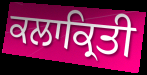
ਕਲਾਕ੍ਰਿਤੀ